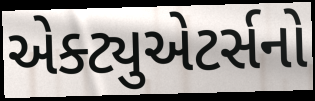
એક્ટ્યુએટર્સનો